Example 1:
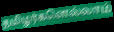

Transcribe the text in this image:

தமிழர்களெல்லாம்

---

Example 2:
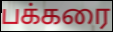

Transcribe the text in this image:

பக்கரை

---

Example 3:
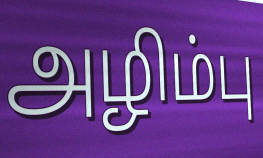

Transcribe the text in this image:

அழிம்பு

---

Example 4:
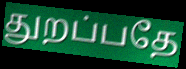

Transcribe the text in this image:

துறப்பதே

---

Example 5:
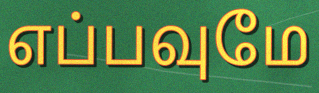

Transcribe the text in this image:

எப்பவுமே